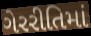
ગેરરીતિમાં